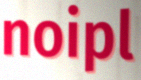
noipl